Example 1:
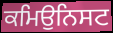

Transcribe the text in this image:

ਕਮਿਉਨਿਸਟ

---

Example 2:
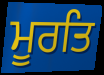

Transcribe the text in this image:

ਮੂਰਤਿ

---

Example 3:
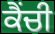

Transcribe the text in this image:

ਕੈਂਚੀ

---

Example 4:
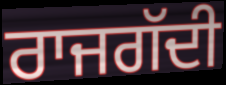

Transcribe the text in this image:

ਰਾਜਗੱਦੀ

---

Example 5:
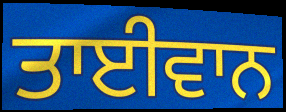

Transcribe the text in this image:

ਤਾਈਵਾਨ